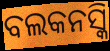
ବଲକନସ୍କି